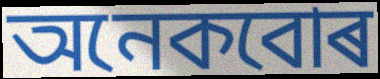
অনেকবোৰ